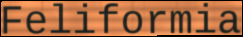
Feliformia